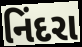
નિંદરા